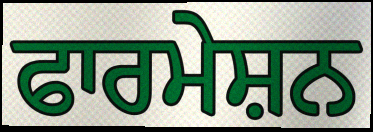
ਫਾਰਮੇਸ਼ਨ